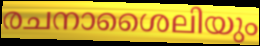
രചനാശൈലിയും